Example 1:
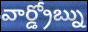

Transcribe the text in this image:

వార్డ్రోబ్ను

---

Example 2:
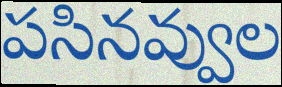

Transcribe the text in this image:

పసినవ్వుల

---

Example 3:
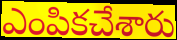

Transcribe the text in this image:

ఎంపికచేశారు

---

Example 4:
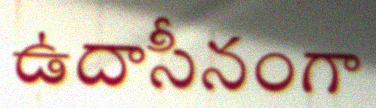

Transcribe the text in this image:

ఉదాసీనంగా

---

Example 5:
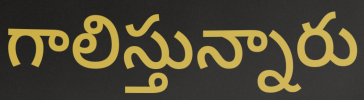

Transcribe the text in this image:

గాలిస్తున్నారు